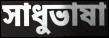
সাধুভাষা